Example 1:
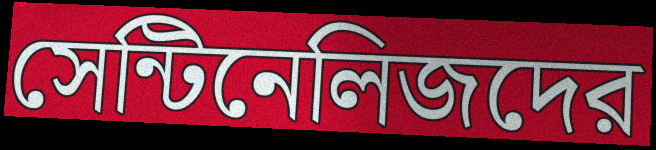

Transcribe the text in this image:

সেন্টিনেলিজদের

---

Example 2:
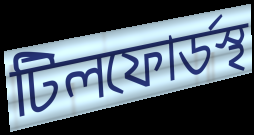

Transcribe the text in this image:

টিলফোর্ডস্থ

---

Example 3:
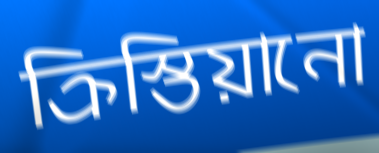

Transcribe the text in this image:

ক্রিস্তিয়ানো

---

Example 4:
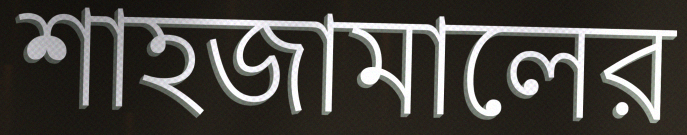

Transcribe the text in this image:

শাহজামালের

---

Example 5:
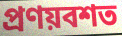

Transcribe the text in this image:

প্রণয়বশত